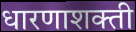
धारणाशक्ती